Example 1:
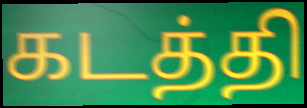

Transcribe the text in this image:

கடத்தி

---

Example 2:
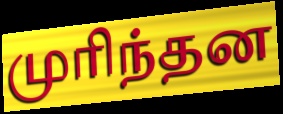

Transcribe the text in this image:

முரிந்தன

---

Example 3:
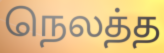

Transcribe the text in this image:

நெலத்த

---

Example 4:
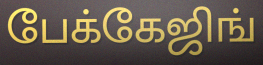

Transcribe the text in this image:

பேக்கேஜிங்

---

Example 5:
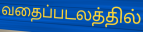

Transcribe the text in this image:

வதைப்படலத்தில்